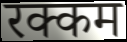
रक्कम